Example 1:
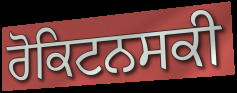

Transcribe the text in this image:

ਰੋਕਿਟਨਸਕੀ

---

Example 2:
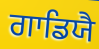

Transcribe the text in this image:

ਗਾਡਿਯੈ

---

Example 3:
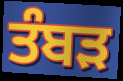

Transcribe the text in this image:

ਤੰਬੜ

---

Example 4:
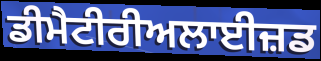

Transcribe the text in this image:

ਡੀਮੈਟੀਰੀਅਲਾਈਜ਼ਡ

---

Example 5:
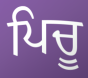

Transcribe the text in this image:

ਪਿਚੂ